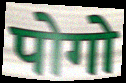
पोगो